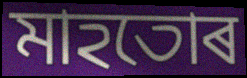
মাহতোৰ